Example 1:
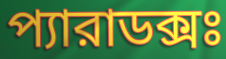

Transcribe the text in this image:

প্যারাডক্সঃ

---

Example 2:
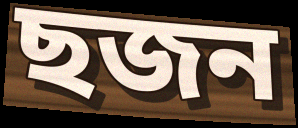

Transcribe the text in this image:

ছজন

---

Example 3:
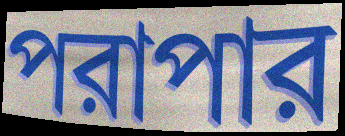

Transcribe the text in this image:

পরাপার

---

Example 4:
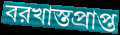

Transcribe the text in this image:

বরখাস্তপ্রাপ্ত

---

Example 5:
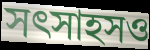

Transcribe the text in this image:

সৎসাহসও